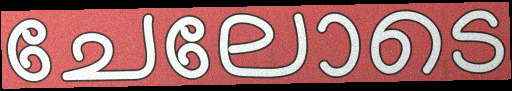
ചേലോടെ